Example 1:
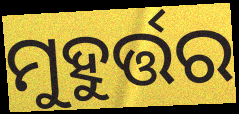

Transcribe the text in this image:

ମୁହୁର୍ତ୍ତର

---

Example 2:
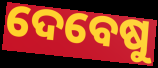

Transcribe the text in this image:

ଦେବେଷୁ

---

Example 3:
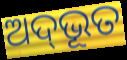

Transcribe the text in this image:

ଅଦ୍‍ଭୂତ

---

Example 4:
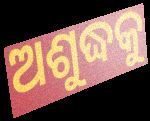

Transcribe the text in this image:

ଅଶୁଦ୍ଧକୁ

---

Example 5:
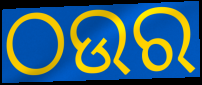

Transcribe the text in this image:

ଠଉର